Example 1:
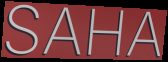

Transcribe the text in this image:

SAHA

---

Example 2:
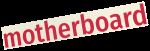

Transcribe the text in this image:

motherboard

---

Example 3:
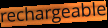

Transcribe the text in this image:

rechargeable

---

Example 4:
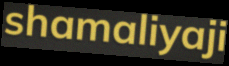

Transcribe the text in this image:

shamaliyaji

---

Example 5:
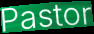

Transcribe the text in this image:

Pastor